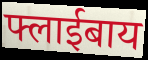
फ्लाईबाय